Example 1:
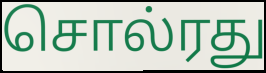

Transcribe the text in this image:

சொல்ரது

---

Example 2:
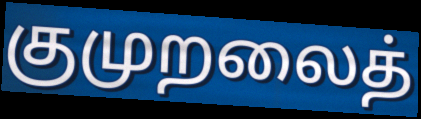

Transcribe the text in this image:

குமுறலைத்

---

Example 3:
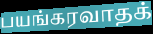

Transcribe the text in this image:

பயங்கரவாதக்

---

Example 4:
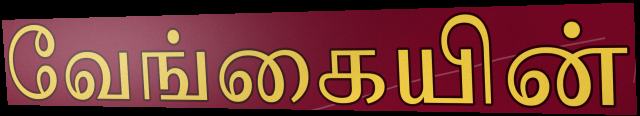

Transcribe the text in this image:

வேங்கையின்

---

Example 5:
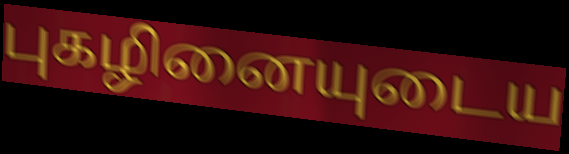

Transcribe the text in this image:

புகழினையுடைய